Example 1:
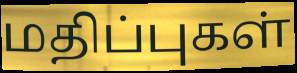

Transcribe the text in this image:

மதிப்புகள்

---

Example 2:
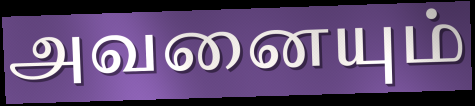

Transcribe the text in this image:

அவனையும்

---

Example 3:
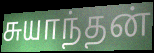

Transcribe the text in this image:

சுயாந்தன்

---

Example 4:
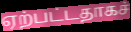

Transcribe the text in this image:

ஏற்பட்டதாகச்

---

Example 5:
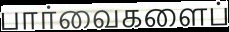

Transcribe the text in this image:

பார்வைகளைப்